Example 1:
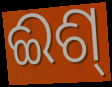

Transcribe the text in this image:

ଈଶ୍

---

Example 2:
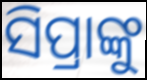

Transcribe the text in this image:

ସିପ୍ରାଙ୍କୁ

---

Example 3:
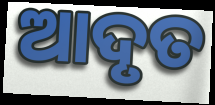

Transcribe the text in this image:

ଆଦୃତ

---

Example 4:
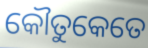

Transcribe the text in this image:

କୌତୁକେତେ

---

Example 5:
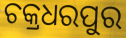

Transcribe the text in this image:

ଚକ୍ରଧରପୁର